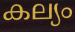
കല്യം